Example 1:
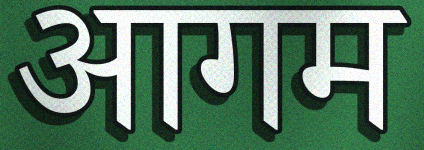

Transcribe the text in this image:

आगम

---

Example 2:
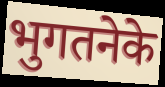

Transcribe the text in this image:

भुगतनेके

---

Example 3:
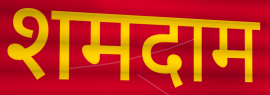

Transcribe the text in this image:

शमदाम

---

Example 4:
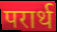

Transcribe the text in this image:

परार्थ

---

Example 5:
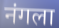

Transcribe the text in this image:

नंगला